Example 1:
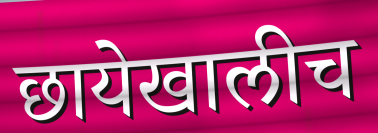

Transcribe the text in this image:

छायेखालीच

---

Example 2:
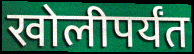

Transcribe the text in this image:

खोलीपर्यंत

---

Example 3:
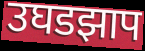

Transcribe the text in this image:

उघडझाप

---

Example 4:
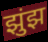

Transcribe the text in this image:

झुंझ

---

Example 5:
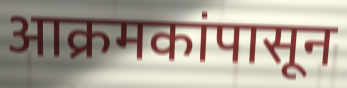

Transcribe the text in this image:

आक्रमकांपासून